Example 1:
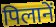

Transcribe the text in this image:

पिलानें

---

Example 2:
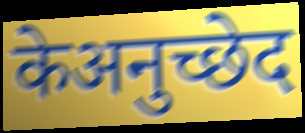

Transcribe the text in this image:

केअनुच्छेद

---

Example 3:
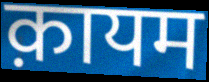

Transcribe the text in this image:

क़ायम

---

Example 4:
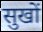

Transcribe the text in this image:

सुखों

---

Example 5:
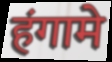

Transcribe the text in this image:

हंगामे